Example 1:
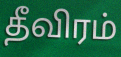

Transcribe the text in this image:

தீவிரம்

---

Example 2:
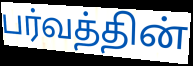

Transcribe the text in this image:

பர்வத்தின்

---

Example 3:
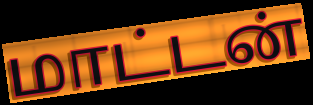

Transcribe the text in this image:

மாட்டன்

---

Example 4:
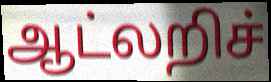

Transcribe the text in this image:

ஆட்லறிச்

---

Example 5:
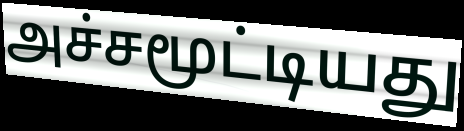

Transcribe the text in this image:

அச்சமூட்டியது